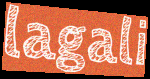
lagali